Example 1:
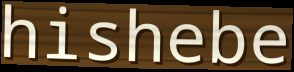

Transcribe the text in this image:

hishebe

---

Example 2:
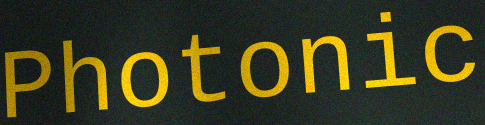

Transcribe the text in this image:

Photonic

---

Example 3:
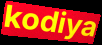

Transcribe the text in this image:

kodiya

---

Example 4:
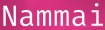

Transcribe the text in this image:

Nammai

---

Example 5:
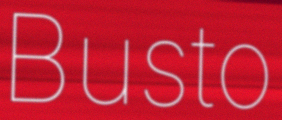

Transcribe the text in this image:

Busto